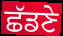
ਛੱਡਣੇ